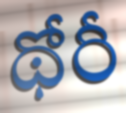
థోరీ